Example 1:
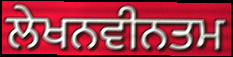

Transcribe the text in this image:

ਲੇਖਨਵੀਨਤਮ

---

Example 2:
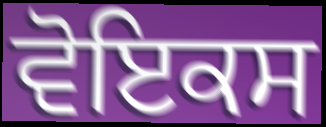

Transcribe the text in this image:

ਵੋਇਕਸ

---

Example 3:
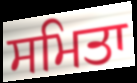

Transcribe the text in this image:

ਸਮਿਤਾ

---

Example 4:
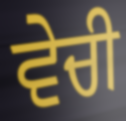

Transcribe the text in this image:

ਵੇਚੀ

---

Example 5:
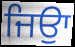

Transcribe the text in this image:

ਜਿਉਾ